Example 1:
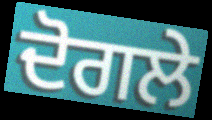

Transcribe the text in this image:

ਦੋਗਲੇ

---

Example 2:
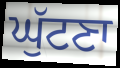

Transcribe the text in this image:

ਘੁੱਟਣਾ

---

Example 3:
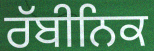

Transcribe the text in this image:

ਰੱਬੀਨਿਕ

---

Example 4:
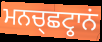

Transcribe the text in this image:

ਮਨਚ੍ਛਟ੍ਠਾਨਂ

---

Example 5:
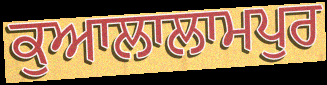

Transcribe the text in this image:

ਕੁਆਲਾਲਾਮਪੁਰ